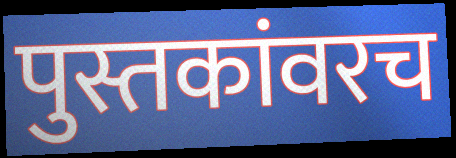
पुस्तकांवरच